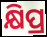
କ୍ଷିପ୍ର